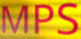
MPS